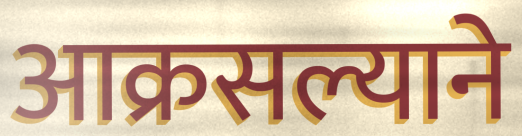
आक्रसल्याने